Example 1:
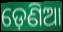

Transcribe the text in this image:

ଡ଼େଣିଆ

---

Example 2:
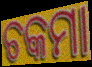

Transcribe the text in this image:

ଚକମା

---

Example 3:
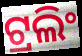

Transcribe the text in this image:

ଟ୍ରଲିଂ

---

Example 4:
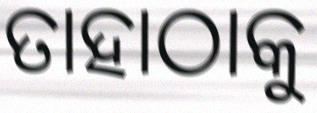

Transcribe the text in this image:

ତାହାଠାକୁ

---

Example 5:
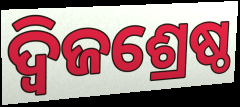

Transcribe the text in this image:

ଦ୍ୱିଜଶ୍ରେଷ୍ଠ